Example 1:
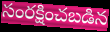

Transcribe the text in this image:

సంరక్షించబడిన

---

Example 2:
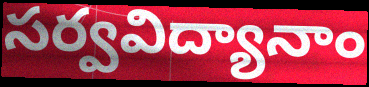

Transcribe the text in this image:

సర్వవిద్యానాం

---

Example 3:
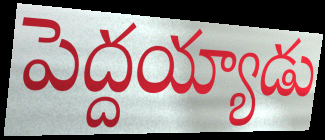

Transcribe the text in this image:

పెద్దయ్యాడు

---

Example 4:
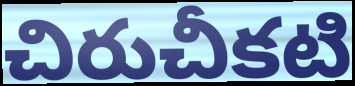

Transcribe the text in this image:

చిరుచీకటి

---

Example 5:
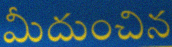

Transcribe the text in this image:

మీదుంచిన